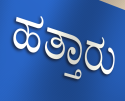
ಹತ್ತಾರು